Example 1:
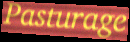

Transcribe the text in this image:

Pasturage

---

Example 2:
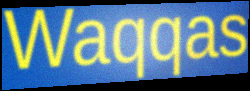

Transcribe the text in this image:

Waqqas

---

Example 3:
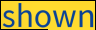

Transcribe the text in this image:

shown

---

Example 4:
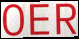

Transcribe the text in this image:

OER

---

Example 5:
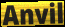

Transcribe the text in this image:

Anvil